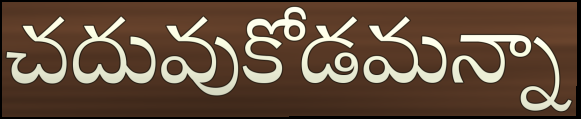
చదువుకోడమన్నా